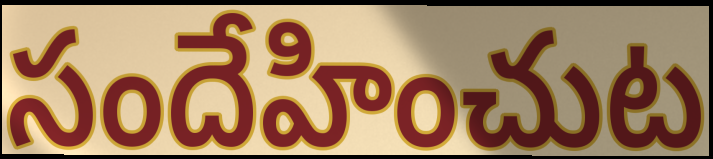
సందేహించుట